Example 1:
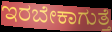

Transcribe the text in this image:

ಇರಬೇಕಾಗುತ್ತೆ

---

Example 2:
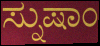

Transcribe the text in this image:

ಸ್ನುಷಾಂ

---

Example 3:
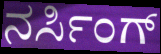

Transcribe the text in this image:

ನರ್ಸಿಂಗ್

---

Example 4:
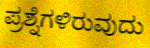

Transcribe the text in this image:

ಪ್ರಶ್ನೆಗಳಿರುವುದು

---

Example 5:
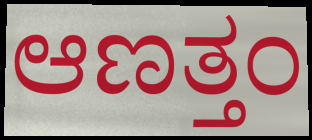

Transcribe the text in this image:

ಆಣತ್ತಂ